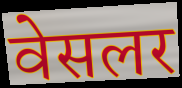
वेसलर